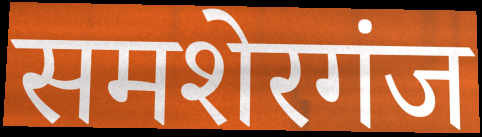
समशेरगंज